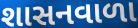
શાસનવાળા